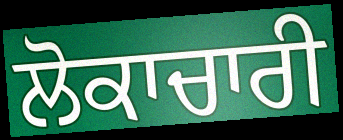
ਲੋਕਾਚਾਰੀ